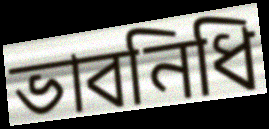
ভাবনিধি